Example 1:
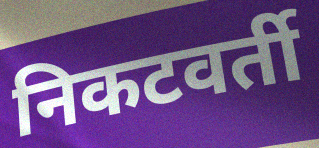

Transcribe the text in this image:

निकटवर्ती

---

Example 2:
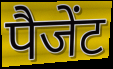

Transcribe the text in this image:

पैजेंट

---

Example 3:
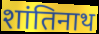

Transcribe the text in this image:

शांतिनाथ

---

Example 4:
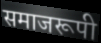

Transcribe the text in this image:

समाजरूपी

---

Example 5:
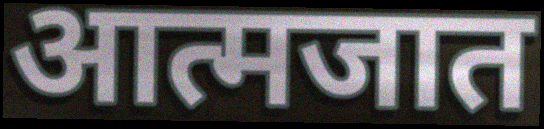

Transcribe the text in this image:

आत्मजात